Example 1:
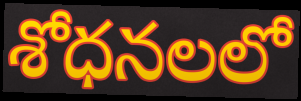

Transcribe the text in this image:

శోధనలలో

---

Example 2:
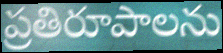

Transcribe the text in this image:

ప్రతిరూపాలను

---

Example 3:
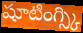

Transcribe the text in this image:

షూటింగ్స్కి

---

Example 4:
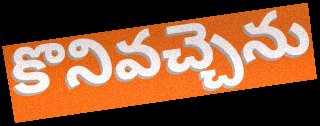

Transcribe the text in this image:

కొనివచ్చెను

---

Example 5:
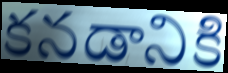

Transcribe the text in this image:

కనడానికి